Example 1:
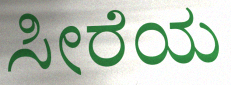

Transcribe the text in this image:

ಸೀರೆಯ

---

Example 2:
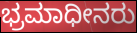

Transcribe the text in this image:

ಭ್ರಮಾಧೀನರು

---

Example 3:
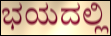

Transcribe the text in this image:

ಭಯದಲ್ಲಿ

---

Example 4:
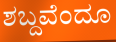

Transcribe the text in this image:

ಶಬ್ದವೆಂದೂ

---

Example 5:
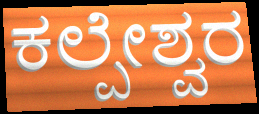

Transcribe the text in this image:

ಕಲ್ಪೇಶ್ವರ